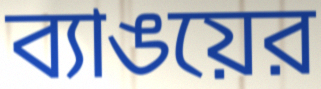
ব্যাঙয়ের